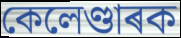
কেলেণ্ডাৰক